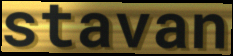
stavan